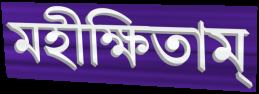
মহীক্ষিতাম্